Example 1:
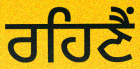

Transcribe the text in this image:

ਰਹਿਣੈਂ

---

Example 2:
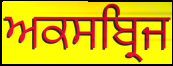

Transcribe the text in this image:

ਅਕਸਬ੍ਰਿਜ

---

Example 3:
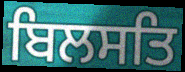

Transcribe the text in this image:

ਬਿਲਸਤਿ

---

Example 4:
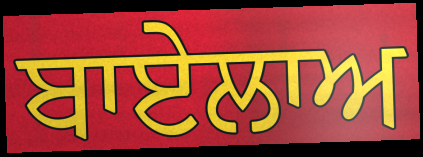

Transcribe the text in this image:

ਬਾਏਲਾਅ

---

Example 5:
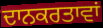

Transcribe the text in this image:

ਦਾਨਕਰਤਾਵਾਂ